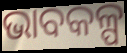
ଭାବକଳ୍ପ